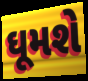
ઘૂમશે